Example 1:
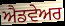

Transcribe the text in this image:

ਐਡਵੇਅਰ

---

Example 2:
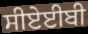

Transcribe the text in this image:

ਸੀਏਈਬੀ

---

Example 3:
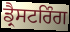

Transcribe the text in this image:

ਡ੍ਰੈਸਟਰਿੰਗ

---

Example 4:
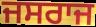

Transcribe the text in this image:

ਜਸਰਾਜ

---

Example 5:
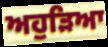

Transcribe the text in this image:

ਅਹੁੜਿਆ